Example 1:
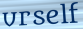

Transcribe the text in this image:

urself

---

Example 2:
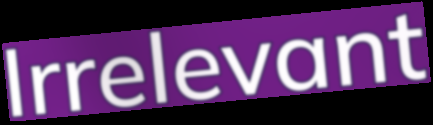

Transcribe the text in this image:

Irrelevant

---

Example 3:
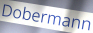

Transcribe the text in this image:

Dobermann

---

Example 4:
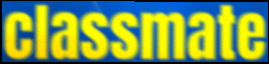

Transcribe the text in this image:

classmate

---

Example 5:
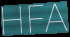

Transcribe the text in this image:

HFA